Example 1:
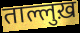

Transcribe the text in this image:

ताल्लुख़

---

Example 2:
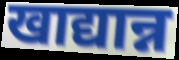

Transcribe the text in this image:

खाद्यान्न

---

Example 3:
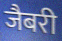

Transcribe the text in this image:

जैबरी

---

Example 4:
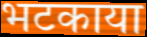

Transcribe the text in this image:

भटकाया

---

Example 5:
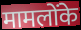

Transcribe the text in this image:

मामलोंके